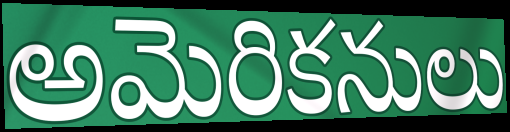
అమెరికనులు